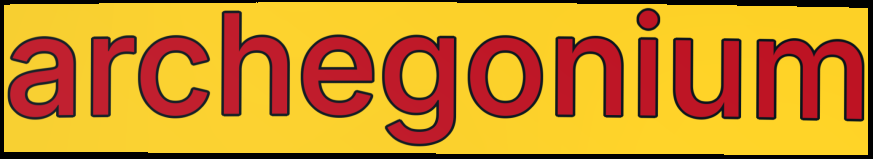
archegonium